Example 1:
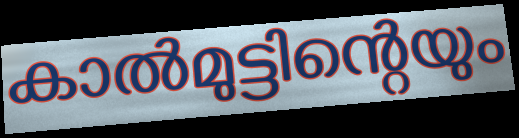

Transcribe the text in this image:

കാൽമുട്ടിന്റെയും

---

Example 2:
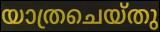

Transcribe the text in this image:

യാത്രചെയ്തു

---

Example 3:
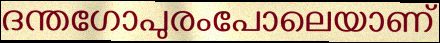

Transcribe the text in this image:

ദന്തഗോപുരംപോലെയാണ്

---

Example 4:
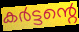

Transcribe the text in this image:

കർട്ടന്റെ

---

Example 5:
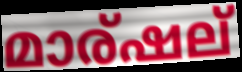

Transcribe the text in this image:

മാര്ഷല്